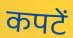
कपटें